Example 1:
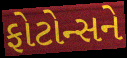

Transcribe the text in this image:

ફોટોન્સને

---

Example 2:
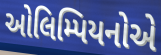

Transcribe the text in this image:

ઓલિમ્પિયનોએ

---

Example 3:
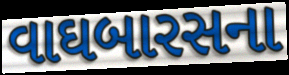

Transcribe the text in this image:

વાઘબારસના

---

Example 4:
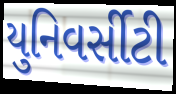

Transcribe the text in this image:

યુનિવર્સીટી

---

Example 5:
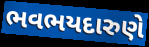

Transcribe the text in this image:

ભવભયદારુણે